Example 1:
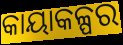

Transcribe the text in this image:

କାୟାକଳ୍ପର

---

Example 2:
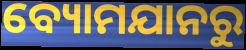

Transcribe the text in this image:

ବ୍ୟୋମଯାନରୁ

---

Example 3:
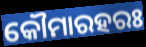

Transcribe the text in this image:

କୌମାରହରଃ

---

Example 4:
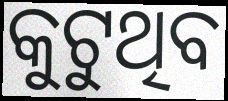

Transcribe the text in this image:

କୁଟୁଥିବ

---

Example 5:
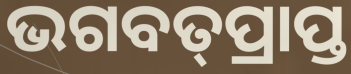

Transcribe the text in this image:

ଭଗବତ୍‌ପ୍ରାପ୍ତ